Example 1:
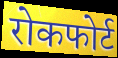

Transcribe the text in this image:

रोकफोर्ट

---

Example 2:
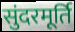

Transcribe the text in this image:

सुंदरमूर्ति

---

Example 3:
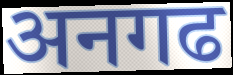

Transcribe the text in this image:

अनगढ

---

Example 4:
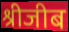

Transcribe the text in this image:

श्रीजीब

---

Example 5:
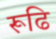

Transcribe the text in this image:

रूढि